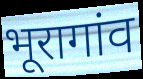
भूरागांव